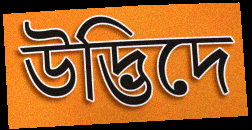
উদ্ভিদে